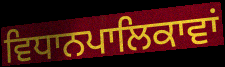
ਵਿਧਾਨਪਾਲਿਕਾਵਾਂ